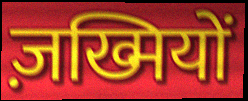
ज़ख्मियों